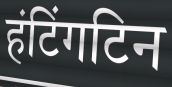
हंटिंगटिन